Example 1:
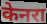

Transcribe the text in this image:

केनरा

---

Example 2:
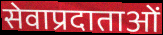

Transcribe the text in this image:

सेवाप्रदाताओं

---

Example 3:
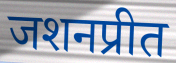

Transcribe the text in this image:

जशनप्रीत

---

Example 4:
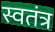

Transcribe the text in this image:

स्वतंत्र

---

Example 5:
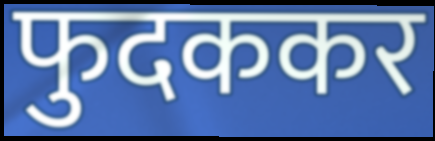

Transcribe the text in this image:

फुदककर